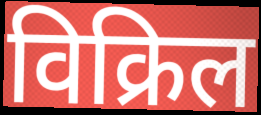
विक्रिल